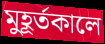
মুহূর্তকালে